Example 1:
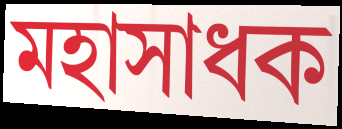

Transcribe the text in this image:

মহাসাধক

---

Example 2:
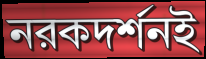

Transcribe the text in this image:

নরকদর্শনই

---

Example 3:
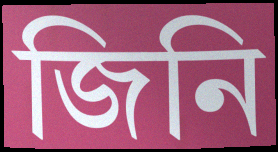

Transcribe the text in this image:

জিনি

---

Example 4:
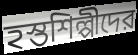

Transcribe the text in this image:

হস্তশিল্পীদের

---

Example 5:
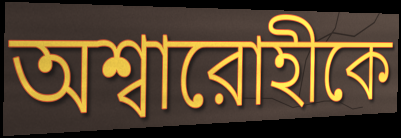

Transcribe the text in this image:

অশ্বারোহীকে